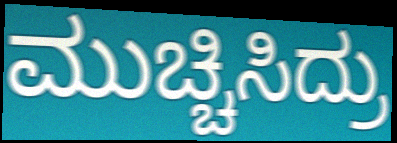
ಮುಚ್ಚಿಸಿದ್ರು